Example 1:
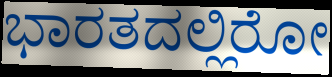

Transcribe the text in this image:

ಭಾರತದಲ್ಲಿರೋ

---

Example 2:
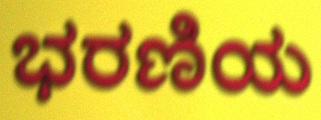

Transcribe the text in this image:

ಭರಣಿಯ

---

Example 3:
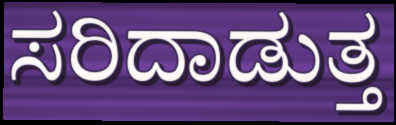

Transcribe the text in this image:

ಸರಿದಾಡುತ್ತ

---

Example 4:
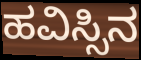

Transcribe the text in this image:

ಹವಿಸ್ಸಿನ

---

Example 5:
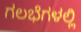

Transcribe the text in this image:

ಗಲಭೆಗಳಲ್ಲಿ